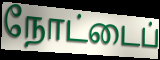
நோட்டைப்